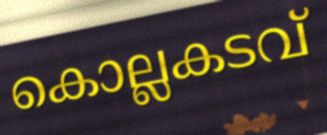
കൊല്ലകടവ്